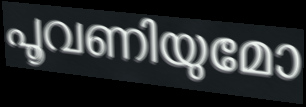
പൂവണിയുമോ